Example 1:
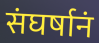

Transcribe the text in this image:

संघर्षानं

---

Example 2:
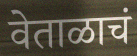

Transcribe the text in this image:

वेताळाचं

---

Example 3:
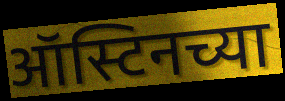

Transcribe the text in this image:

ऑस्टिनच्या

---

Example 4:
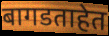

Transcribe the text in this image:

बागडताहेत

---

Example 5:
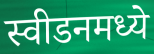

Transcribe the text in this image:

स्वीडनमध्ये